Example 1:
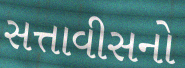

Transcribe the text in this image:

સત્તાવીસનો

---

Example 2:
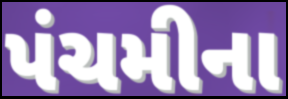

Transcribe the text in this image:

પંચમીના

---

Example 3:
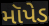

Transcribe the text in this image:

મૉપેડ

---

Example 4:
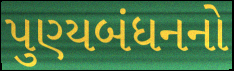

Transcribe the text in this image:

પુણ્યબંધનનો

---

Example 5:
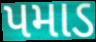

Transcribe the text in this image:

પમાડ